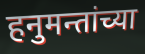
हनुमन्तांच्या